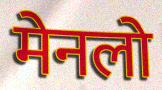
मेनलो